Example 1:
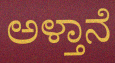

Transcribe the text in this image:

ಅಳ್ತಾನೆ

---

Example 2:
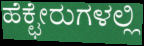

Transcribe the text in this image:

ಹೆಕ್ಟೇರುಗಳಲ್ಲಿ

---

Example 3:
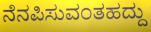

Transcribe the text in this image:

ನೆನಪಿಸುವಂತಹದ್ದು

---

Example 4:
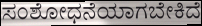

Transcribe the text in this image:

ಸಂಶೋಧನೆಯಾಗಬೇಕಿದೆ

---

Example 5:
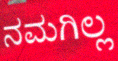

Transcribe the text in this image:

ನಮಗಿಲ್ಲ